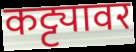
कट्ट्यावर